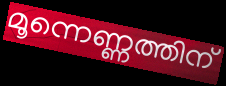
മൂന്നെണ്ണത്തിന്